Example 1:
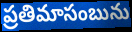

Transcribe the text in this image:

ప్రతిమాసంబును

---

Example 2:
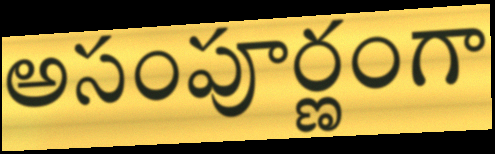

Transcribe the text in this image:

అసంపూర్ణంగా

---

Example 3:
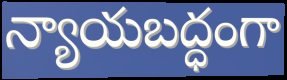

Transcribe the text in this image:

న్యాయబద్ధంగా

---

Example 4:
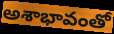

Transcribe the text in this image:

అశాభావంతో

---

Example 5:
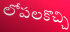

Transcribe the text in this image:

లోపలకొచ్చి